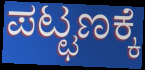
ಪಟ್ಟಣಕ್ಕೆ